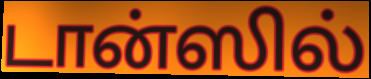
டான்ஸில்